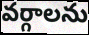
వర్గాలను